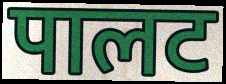
पालट